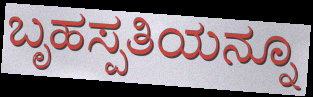
ಬೃಹಸ್ಪತಿಯನ್ನೂ